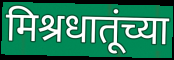
मिश्रधातूंच्या